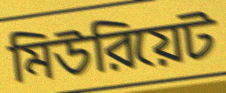
মিউরিয়েট